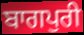
ਬਾਗਪੁਰੀ